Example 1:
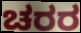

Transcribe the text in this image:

ಚರರ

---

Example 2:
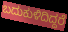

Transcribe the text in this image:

ಬದುಕುಳಿದಿದ್ದರೆ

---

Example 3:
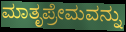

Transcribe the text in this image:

ಮಾತೃಪ್ರೇಮವನ್ನು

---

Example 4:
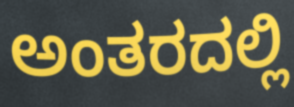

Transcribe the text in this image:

ಅಂತರದಲ್ಲಿ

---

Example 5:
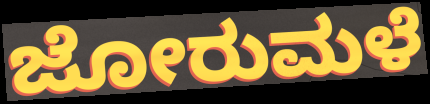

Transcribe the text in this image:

ಜೋರುಮಳೆ